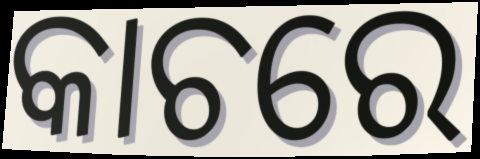
କାଚରେ